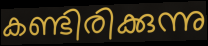
കണ്ടിരിക്കുന്നു